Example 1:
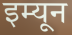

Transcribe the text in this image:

इम्यून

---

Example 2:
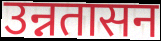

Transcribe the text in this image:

उन्नतासन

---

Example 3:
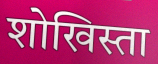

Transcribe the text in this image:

शोखिस्ता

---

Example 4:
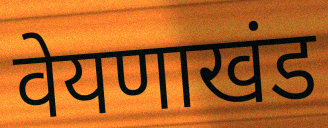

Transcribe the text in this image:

वेयणाखंड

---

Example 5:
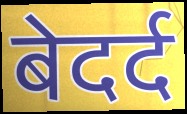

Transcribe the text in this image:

बेदर्द